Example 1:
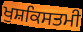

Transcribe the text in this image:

ਖੁਸ਼ਕਿਸਤਮੀ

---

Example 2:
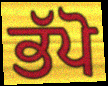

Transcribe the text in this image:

ਭੱਪੋ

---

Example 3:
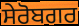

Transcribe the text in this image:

ਸੇਰੋਬਗਰ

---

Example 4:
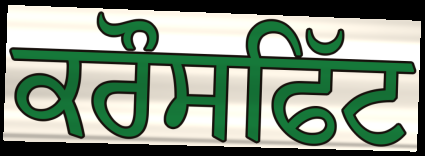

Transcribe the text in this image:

ਕਰੌਸਫਿੱਟ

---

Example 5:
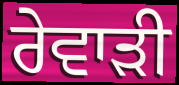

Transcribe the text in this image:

ਰੇਵਾਡ਼ੀ